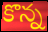
కొన్న